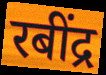
रबींद्र